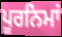
ਪੂਰਨਿਮਾਂ